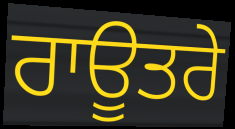
ਰਾਊਤਰੇ